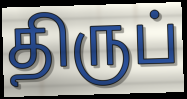
திருப்